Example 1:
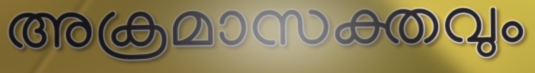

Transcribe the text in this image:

അക്രമാസക്തവും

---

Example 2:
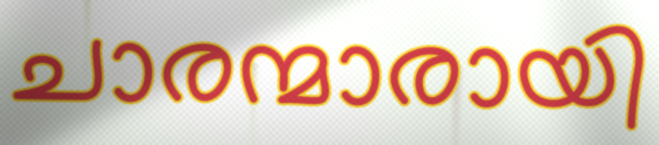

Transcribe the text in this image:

ചാരന്മാരായി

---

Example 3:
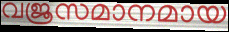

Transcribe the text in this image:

വജ്രസമാനമായ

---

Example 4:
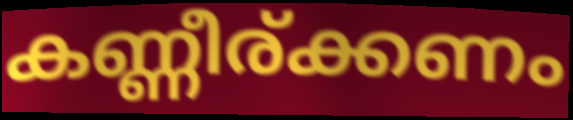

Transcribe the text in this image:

കണ്ണീര്ക്കണം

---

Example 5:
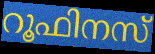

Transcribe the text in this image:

റൂഫിനസ്